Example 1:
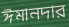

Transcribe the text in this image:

ঈমানদার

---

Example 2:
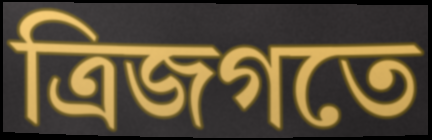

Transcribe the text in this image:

ত্রিজগতে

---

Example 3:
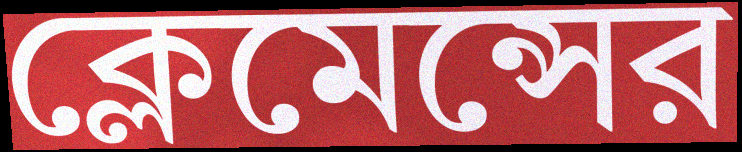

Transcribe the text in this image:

ক্লেমেন্সের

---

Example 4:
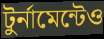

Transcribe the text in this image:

টুর্নামেন্টেও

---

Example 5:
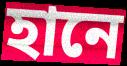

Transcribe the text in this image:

হানে